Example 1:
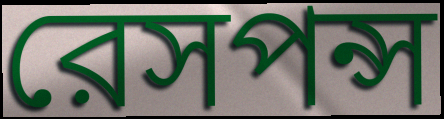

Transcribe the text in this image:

রেসপন্স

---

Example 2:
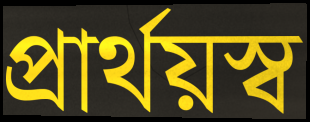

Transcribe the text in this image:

প্রার্থয়স্ব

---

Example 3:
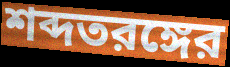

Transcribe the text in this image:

শব্দতরঙ্গের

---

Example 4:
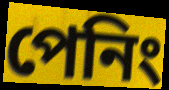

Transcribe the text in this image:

পেনিং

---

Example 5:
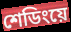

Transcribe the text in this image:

শেডিংয়ে